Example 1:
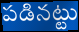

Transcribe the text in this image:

పడినట్టు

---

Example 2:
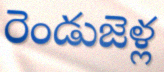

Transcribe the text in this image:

రెండుజెళ్ల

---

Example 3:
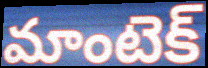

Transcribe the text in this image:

మాంటెక్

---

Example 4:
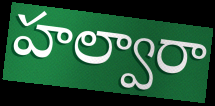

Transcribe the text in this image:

హల్వారా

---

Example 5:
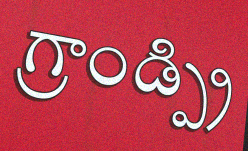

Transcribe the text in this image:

గ్రాండ్ప్రి